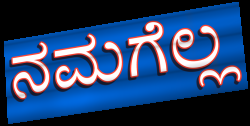
ನಮಗೆಲ್ಲ